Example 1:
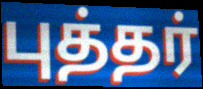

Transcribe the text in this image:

புத்தர்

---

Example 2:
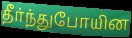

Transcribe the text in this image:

தீர்ந்துபோயின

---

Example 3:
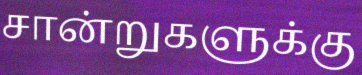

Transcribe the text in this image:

சான்றுகளுக்கு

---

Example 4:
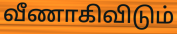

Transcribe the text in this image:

வீணாகிவிடும்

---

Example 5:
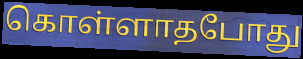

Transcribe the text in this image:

கொள்ளாதபோது